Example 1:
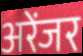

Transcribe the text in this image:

अरेंजर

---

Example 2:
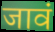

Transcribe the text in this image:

जावं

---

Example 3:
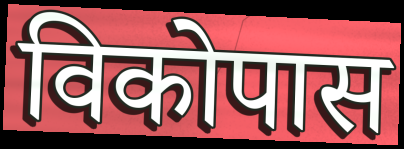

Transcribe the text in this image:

विकोपास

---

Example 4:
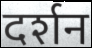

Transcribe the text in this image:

दर्शन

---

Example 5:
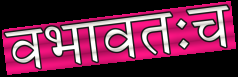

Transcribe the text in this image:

वभावतःच